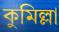
কুমিল্লা